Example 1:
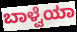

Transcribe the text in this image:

ಬಾಳ್ವೆಯಾ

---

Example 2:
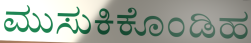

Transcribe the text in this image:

ಮುಸುಕಿಕೊಂಡಿಹ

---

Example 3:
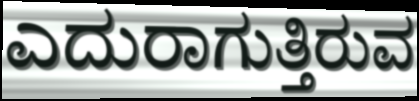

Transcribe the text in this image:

ಎದುರಾಗುತ್ತಿರುವ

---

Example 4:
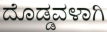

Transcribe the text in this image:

ದೊಡ್ಡವಳಾಗಿ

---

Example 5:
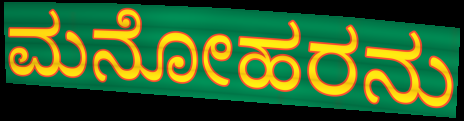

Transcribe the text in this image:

ಮನೋಹರನು